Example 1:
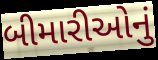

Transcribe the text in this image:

બીમારીઓનું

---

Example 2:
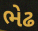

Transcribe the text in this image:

ભેઢ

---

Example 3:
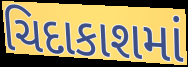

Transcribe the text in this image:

ચિદાકાશમાં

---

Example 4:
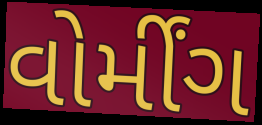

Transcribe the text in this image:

વોર્મીંગ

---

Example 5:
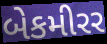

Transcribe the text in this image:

બેકમીરર